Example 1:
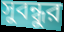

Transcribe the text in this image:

সুবন্ধুর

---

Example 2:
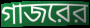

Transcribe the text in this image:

গাজরের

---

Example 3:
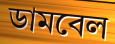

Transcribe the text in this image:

ডামবেল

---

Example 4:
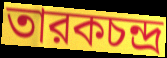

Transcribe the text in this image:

তারকচন্দ্র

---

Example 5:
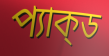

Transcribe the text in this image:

প্যাক্‌ড